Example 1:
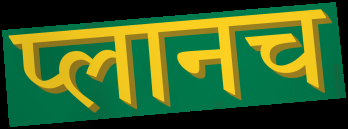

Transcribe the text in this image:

प्लानच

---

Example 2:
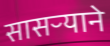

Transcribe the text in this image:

सासऱ्याने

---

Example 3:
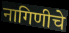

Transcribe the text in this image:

नागिणीचे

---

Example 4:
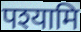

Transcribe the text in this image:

पश्यामि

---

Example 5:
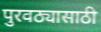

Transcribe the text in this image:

पुरवठ्यासाठी